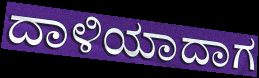
ದಾಳಿಯಾದಾಗ